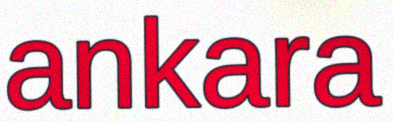
ankara